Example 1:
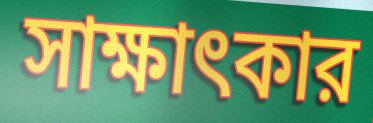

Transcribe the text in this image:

সাক্ষাৎকার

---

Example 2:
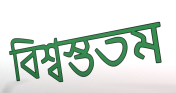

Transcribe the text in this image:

বিশ্বস্ততম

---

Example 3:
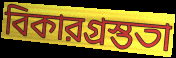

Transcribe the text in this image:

বিকারগ্রস্ততা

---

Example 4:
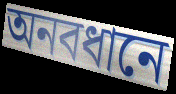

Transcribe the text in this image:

অনবধানে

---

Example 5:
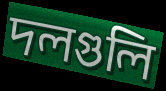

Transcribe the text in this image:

দলগুলি